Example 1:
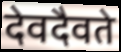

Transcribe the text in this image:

देवदैवते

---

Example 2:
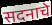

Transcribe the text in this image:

सदनाचे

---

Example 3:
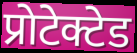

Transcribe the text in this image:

प्रोटेक्टेड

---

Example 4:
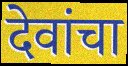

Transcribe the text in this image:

देवांचा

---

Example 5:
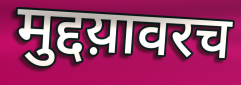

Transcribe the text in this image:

मुद्दय़ावरच